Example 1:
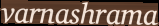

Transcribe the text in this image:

varnashrama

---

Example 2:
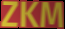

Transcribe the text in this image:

ZKM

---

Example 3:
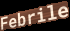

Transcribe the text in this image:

Febrile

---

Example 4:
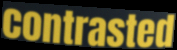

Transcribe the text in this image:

contrasted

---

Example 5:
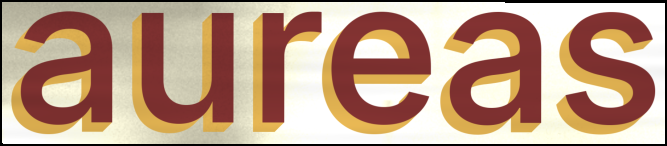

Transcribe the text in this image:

aureas